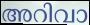
അറിവാ